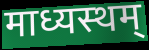
माध्यस्थम्